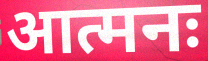
आत्मनः